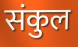
संकुल